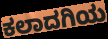
ಕಲಾದಗಿಯ